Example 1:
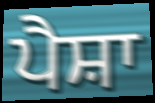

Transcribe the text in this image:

ਪੈਸ਼ਾ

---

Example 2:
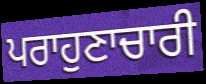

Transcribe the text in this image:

ਪਰਾਹੁਣਾਚਾਰੀ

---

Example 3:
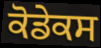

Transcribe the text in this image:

ਕੋਡੇਕਸ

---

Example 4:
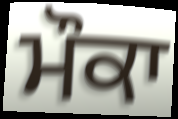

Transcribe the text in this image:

ਮੌਕਾ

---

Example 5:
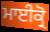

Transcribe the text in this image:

ਮਾਈਕ੍ਰੋ